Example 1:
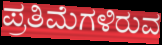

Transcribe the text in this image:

ಪ್ರತಿಮೆಗಳಿರುವ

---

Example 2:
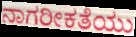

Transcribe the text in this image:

ನಾಗರೀಕತೆಯು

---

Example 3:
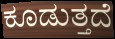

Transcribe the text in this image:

ಕೂಡುತ್ತದೆ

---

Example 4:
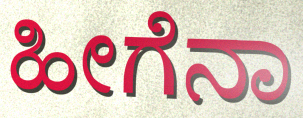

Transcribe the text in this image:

ಹೀಗೆನಾ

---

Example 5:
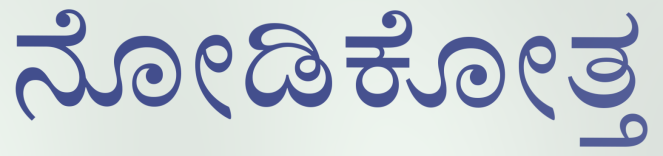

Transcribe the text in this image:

ನೋಡಿಕೋತ್ತ